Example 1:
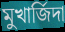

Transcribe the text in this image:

মুখার্জিদা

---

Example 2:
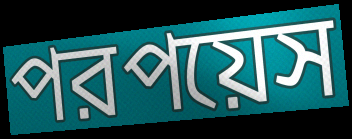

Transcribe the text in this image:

পরপয়েস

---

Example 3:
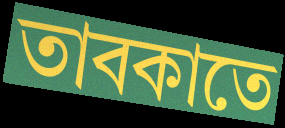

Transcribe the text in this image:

তাবকাতে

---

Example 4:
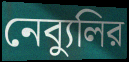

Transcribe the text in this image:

নেব্যুলির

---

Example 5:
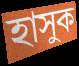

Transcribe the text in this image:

হাসুক